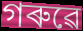
গৰুৱে